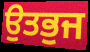
ਉਤਭੁਜ